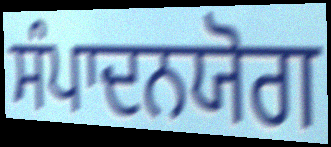
ਸੰਪਾਦਨਯੋਗ